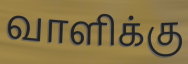
வாளிக்கு